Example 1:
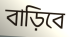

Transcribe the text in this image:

বাড়িবে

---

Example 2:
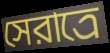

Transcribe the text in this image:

সেরাত্রে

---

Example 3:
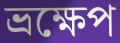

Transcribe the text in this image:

ভ্রক্ষেপ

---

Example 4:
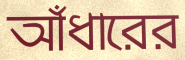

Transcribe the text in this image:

আঁধারের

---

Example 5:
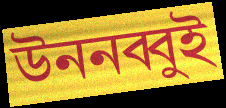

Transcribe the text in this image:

উননব্বুই